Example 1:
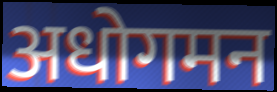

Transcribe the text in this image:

अधोगमन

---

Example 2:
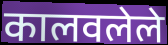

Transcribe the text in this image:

कालवलेले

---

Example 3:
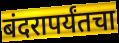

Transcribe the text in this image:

बंदरापर्यंतचा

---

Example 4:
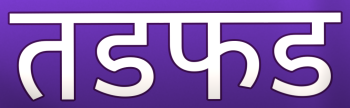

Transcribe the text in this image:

तडफड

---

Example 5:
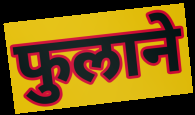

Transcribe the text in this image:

फुलाने